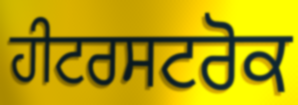
ਹੀਟਰਸਟਰੋਕ